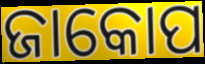
ଜାକୋପ